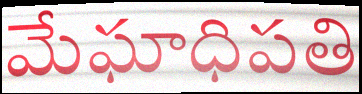
మేఘాధిపతి